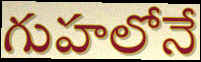
గుహలోనే